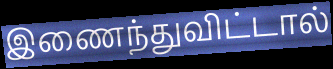
இணைந்துவிட்டால்